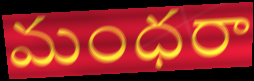
మంధరా